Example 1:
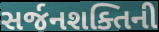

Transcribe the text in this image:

સર્જનશક્તિની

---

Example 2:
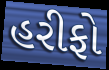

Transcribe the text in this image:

હરીફો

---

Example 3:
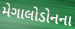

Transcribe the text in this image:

મેગાલોડોનના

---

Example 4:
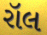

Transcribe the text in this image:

રૉલ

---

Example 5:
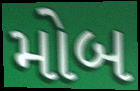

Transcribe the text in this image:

મોબ